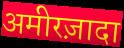
अमीरज़ादा